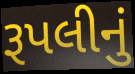
રૂપલીનું